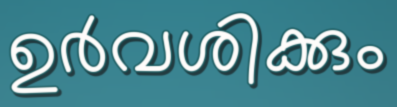
ഉർവശിക്കും